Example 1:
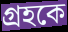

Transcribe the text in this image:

গ্রহকে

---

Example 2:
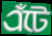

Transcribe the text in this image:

এঁটে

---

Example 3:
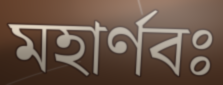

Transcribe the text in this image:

মহার্ণবঃ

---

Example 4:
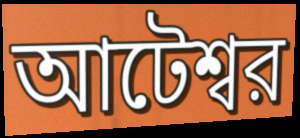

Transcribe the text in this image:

আটেশ্বর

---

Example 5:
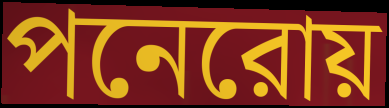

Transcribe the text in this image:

পনেরোয়